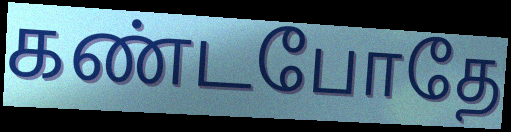
கண்டபோதே